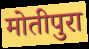
मोतीपुरा